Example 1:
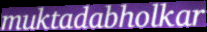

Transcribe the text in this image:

muktadabholkar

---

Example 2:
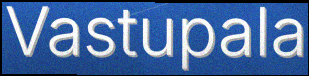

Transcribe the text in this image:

Vastupala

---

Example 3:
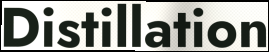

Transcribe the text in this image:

Distillation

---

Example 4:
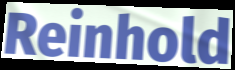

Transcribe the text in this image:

Reinhold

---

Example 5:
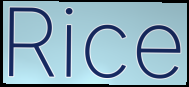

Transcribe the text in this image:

Rice